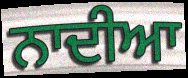
ਨਾਦੀਆ